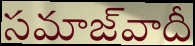
సమాజ్‌వాదీ